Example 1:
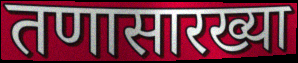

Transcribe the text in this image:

तणासारख्या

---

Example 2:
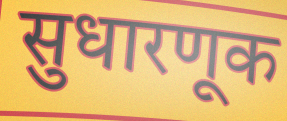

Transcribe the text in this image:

सुधारणूक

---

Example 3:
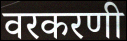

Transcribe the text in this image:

वरकरणी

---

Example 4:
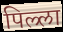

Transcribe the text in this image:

पिल्ला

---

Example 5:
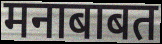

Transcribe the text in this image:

मनाबाबत